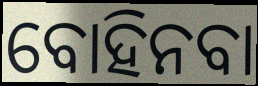
ବୋହିନବା